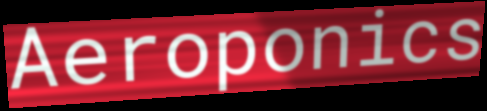
Aeroponics